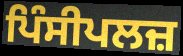
ਪਿੰਸੀਪਲਜ਼